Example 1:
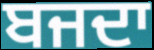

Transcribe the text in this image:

ਬਜਦਾ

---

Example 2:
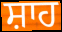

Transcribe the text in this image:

ਸ਼ਾਹ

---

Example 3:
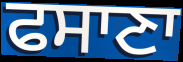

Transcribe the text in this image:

ਫਸਾਣਾ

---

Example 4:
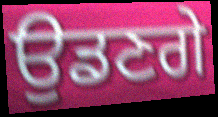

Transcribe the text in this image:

ਉਡਣਗੇ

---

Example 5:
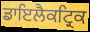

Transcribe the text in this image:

ਡਾਇਲੈਕਟ੍ਰਿਕ